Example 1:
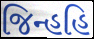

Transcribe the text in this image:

જિન્હહિ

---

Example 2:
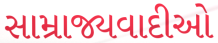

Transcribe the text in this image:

સામ્રાજ્યવાદીઓ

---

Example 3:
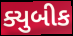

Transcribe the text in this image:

ક્યુબીક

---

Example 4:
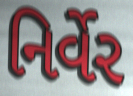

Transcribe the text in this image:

નિર્વેર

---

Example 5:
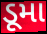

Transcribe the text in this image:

ડૂમા